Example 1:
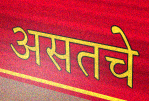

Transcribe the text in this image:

असतचे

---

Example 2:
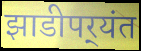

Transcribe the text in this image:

झाडीपर्यंत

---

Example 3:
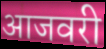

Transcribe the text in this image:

आजवरी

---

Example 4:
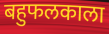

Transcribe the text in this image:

बहुफलकाला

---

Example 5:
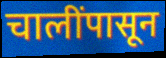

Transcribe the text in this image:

चालींपासून